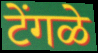
टेंगळे